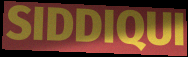
SIDDIQUI